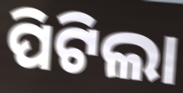
ପିଟିଲା